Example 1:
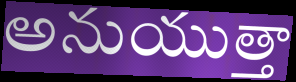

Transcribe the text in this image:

అనుయుత్తా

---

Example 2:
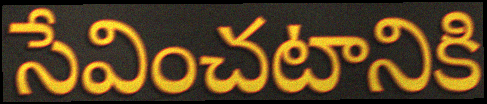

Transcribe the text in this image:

సేవించటానికి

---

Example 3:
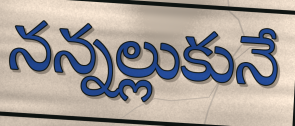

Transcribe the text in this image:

నన్నల్లుకునే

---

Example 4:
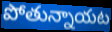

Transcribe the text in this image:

పోతున్నాయట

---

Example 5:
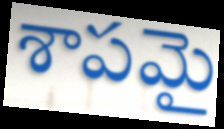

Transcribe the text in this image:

శాపమై